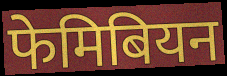
फेमिबियन